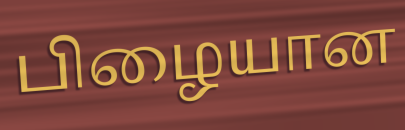
பிழையான